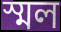
স্মল